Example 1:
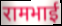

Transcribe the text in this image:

रामभाई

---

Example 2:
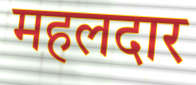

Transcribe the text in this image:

महलदार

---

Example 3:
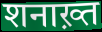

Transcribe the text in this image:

शनाख़्त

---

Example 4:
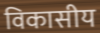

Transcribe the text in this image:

विकासीय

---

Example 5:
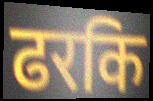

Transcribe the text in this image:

ढरकि